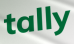
tally